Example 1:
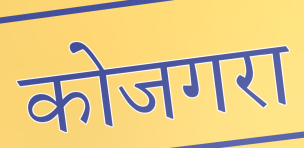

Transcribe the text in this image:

कोजगरा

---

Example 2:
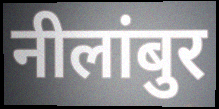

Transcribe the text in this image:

नीलांबुर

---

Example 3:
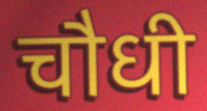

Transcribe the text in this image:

चौधी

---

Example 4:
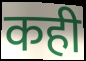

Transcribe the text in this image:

कही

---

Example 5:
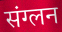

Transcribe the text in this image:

संग्लन